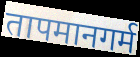
तापमानगर्म